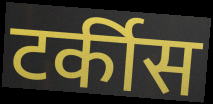
टर्कीस